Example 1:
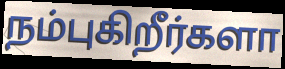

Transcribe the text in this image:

நம்புகிறீர்களா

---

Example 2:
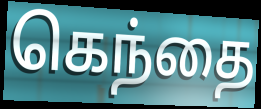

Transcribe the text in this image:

கெந்தை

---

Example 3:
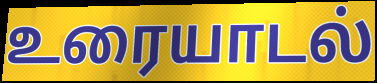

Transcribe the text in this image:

உரையாடல்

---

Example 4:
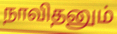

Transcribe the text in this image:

நாவிதனும்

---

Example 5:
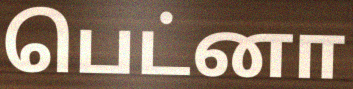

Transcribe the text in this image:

பெட்னா